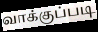
வாக்குப்படி